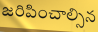
జరిపించాల్సిన